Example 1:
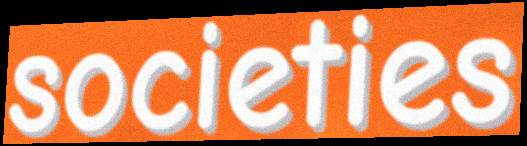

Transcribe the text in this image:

societies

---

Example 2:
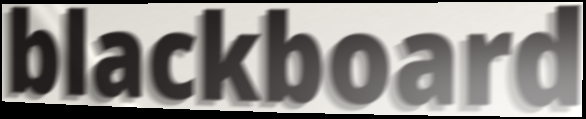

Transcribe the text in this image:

blackboard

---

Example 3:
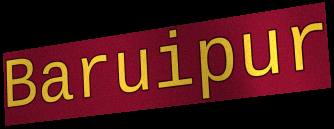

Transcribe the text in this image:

Baruipur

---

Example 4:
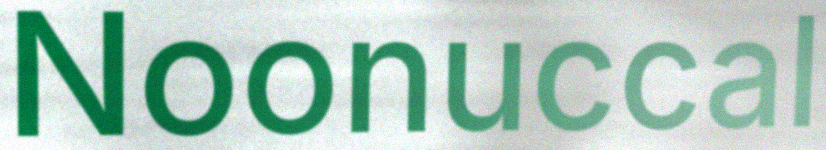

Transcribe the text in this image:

Noonuccal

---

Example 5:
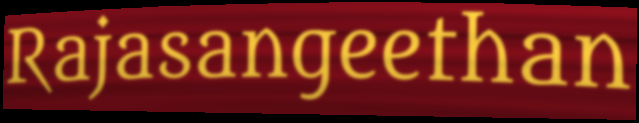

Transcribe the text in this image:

Rajasangeethan